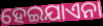
ହେଇଯାଏନା